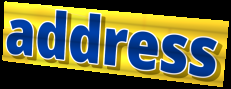
address